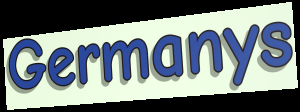
Germanys